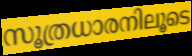
സൂത്രധാരനിലൂടെ